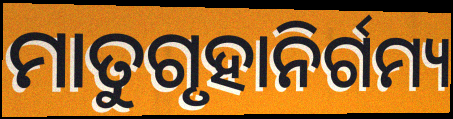
ମାତୁଗୃହାନିର୍ଗମ୍ୟ